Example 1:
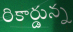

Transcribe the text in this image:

రికార్డున్న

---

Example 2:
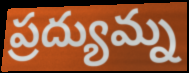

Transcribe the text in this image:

ప్రద్యుమ్న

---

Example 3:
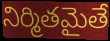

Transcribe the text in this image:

నిర్మితమైతే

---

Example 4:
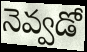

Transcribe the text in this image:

నెవ్వడో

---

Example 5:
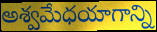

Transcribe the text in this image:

అశ్వమేధయాగాన్ని